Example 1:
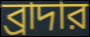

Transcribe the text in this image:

ব্রাদার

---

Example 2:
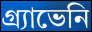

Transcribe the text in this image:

গ্র্যাভেনি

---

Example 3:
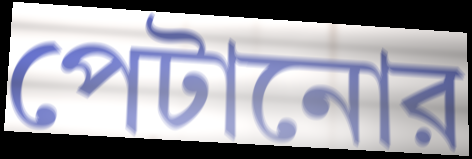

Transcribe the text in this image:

পেটানোর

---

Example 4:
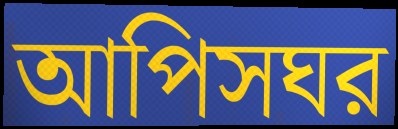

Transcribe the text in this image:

আপিসঘর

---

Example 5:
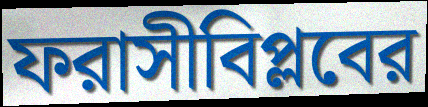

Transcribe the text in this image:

ফরাসীবিপ্লবের